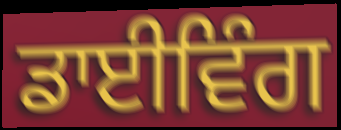
ਡਾਈਵਿੰਗ